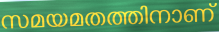
സമയമതത്തിനാണ്